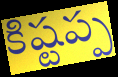
కిష్టప్ప